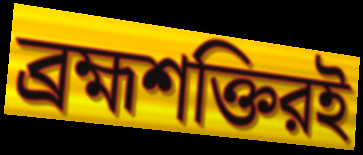
ব্রহ্মশক্তিরই